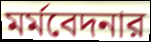
মর্মবেদনার